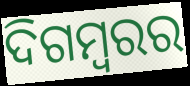
ଦିଗମ୍ୱରର